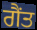
ਗੈਂਤ